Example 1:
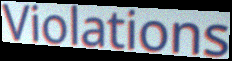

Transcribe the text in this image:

Violations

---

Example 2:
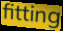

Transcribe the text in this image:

fitting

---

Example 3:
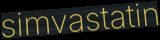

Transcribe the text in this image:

simvastatin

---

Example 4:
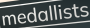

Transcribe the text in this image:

medallists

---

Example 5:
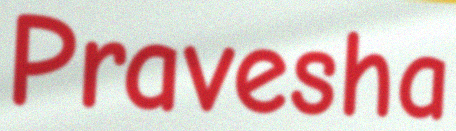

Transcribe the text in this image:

Pravesha